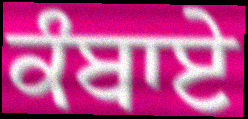
ਕੰਬਾਏ